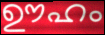
ഊഹം